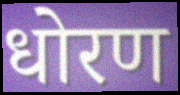
धोरण